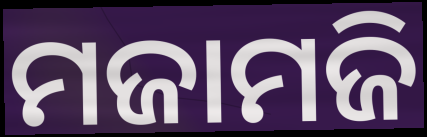
ମଜାମଜି